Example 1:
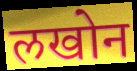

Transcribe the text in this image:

लखोन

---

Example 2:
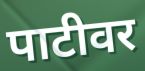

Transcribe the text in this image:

पाटीवर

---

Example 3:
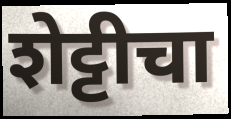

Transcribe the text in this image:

शेट्टीचा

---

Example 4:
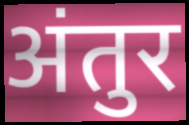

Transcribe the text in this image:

अंतुर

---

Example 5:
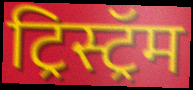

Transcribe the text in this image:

ट्रिस्ट्रॅम